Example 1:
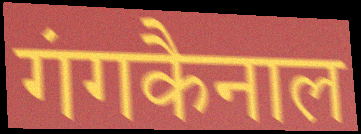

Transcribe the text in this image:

गंगकैनाल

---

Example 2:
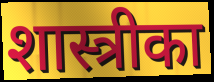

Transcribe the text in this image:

शास्त्रीका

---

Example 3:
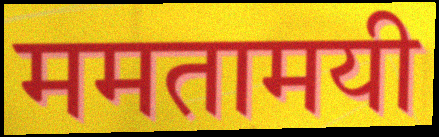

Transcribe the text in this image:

ममतामयी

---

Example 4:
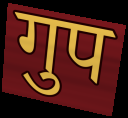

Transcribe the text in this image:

गुप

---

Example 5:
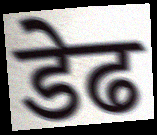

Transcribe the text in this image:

डेढ